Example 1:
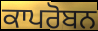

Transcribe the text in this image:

ਕਾਪਰੋਬਨ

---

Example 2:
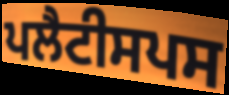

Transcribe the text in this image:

ਪਲੈਟੀਸਪਸ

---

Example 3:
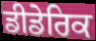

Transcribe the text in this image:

ਡੀਡੇਰਿਕ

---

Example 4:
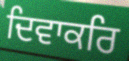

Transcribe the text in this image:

ਦਿਵਾਕਰਿ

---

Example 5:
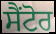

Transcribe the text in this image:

ਸੈਂਟੋਰ